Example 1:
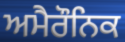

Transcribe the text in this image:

ਅਮੈਰੌਨਿਕ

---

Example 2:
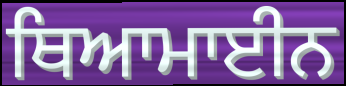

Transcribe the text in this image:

ਥਿਆਮਾਈਨ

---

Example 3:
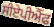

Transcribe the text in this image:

ਸੀਏਪੀਐੱਫ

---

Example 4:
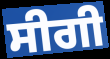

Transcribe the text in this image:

ਸੀਗੀ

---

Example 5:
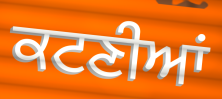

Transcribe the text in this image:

ਕਟਣੀਆਂ